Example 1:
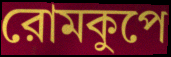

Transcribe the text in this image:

রোমকুপে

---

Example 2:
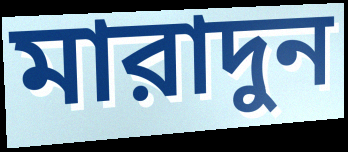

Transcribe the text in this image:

মারাদুন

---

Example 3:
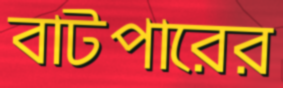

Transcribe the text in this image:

বাটপারের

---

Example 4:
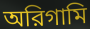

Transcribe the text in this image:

অরিগামি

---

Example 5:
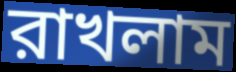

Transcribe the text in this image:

রাখলাম